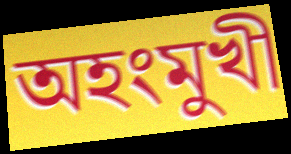
অহংমুখী